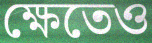
ক্ষেতেও